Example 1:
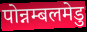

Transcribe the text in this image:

पोन्नम्बलमेडु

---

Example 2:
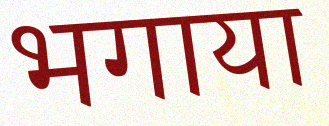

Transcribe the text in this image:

भगाया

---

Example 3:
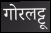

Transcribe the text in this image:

गोरलट्टू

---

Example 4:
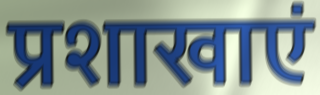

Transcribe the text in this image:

प्रशाखाएं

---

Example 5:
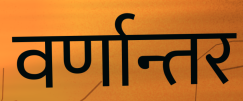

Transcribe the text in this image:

वर्णान्तर